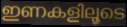
ഇണകളിലൂടെ